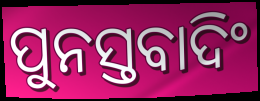
ପୁନସ୍ତବାଦିଂ